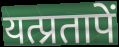
यत्प्रतापें